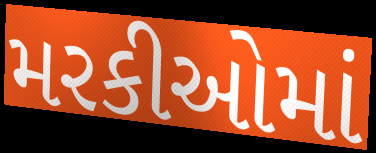
મરકીઓમાં